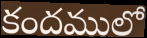
కందములో